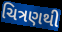
ચિત્રણથી